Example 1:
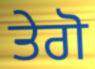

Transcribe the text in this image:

ਤੇਗੋ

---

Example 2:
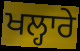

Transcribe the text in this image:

ਖਲ੍ਹਾਰੇ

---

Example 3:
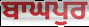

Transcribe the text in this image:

ਬਾਘਪੁਰ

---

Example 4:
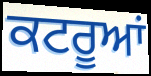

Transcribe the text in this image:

ਕਟਰੂਆਂ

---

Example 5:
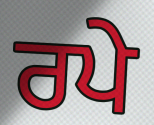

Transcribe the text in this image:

ਰਪੇ